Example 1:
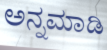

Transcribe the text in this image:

ಅನ್ನಮಾಡಿ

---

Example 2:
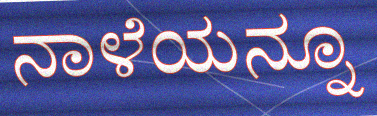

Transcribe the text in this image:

ನಾಳೆಯನ್ನೂ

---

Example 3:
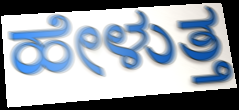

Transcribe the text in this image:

ಹೇಳುತ್ತ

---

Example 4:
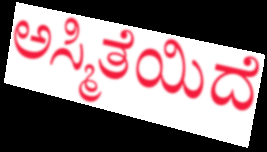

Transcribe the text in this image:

ಅಸ್ಮಿತೆಯಿದೆ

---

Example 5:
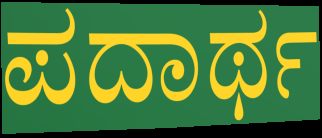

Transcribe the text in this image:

ಪದಾರ್ಥ